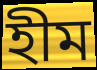
হীম